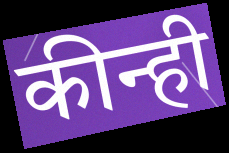
कीन्ही